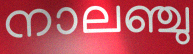
നാലഞ്ചു